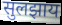
सुलझाय